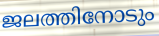
ജലത്തിനോടും